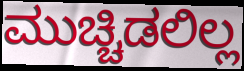
ಮುಚ್ಚಿಡಲಿಲ್ಲ